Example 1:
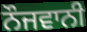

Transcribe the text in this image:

ਨੌਜਵਾਨੀ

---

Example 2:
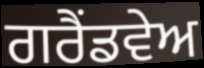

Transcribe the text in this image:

ਗਰੈਂਡਵੇਅ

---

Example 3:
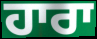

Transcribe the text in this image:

ਹਾਰਾ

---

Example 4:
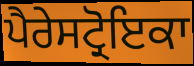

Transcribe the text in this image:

ਪੈਰੇਸਟ੍ਰੋਇਕਾ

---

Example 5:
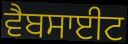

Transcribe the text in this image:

ਵੈਬਸਾਈਟ